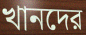
খানদের